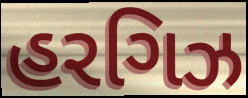
હરગિઝ